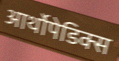
आर्थोपेडिक्स